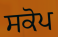
ਸਕੋਪ